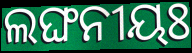
ଲଙ୍ଘନୀୟଃ